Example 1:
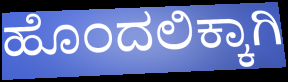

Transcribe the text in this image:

ಹೊಂದಲಿಕ್ಕಾಗಿ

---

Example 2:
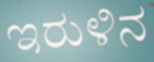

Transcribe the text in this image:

ಇರುಳಿನ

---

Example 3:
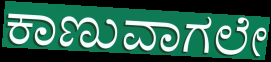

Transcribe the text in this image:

ಕಾಣುವಾಗಲೇ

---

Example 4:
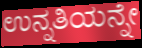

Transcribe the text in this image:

ಉನ್ನತಿಯನ್ನೇ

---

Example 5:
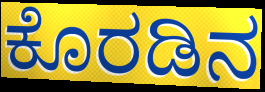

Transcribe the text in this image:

ಕೊರಡಿನ